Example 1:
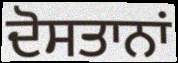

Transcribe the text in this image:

ਦੋਸਤਾਨਾਂ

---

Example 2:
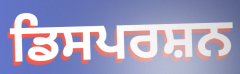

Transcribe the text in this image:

ਡਿਸਪਰਸ਼ਨ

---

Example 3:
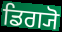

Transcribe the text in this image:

ਡਿਗ੍ਯੋ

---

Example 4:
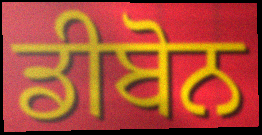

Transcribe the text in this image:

ਡੀਬੋਨ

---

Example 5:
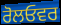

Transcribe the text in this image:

ਰੋਲਓਵਰ